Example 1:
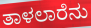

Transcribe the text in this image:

ತಾಳಲಾರೆನು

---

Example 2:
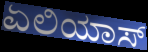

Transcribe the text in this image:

ಏಲಿಯಾಸ್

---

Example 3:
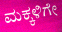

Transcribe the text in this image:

ಮಕ್ಕಳಿಗೇ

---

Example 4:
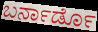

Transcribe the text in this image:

ಬರ್ನಾರ್ಡೊ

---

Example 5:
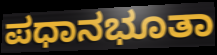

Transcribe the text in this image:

ಪಧಾನಭೂತಾ